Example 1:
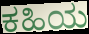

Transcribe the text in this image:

ಕಹಿಯ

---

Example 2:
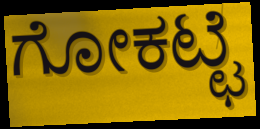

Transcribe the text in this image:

ಗೋಕಟ್ಟೆ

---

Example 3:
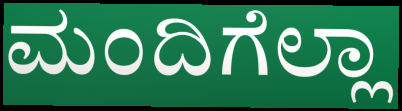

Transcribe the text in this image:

ಮಂದಿಗೆಲ್ಲಾ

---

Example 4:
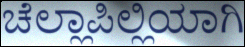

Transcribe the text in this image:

ಚೆಲ್ಲಾಪಿಲ್ಲಿಯಾಗಿ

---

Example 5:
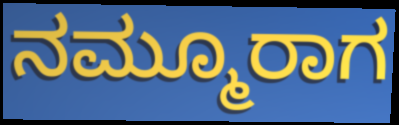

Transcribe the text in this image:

ನಮ್ಮೂರಾಗ